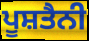
ਪੂਸ਼ਤੈਨੀ